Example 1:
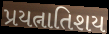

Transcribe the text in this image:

પ્રયત્નાતિશય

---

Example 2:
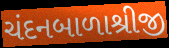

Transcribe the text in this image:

ચંદનબાળાશ્રીજી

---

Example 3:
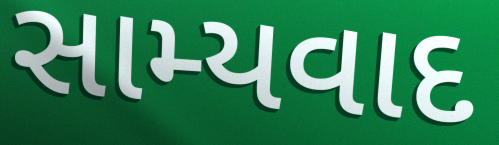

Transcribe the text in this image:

સામ્યવાદ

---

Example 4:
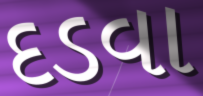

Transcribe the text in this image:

દડવા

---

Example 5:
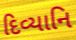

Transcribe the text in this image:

દિવ્યાનિ